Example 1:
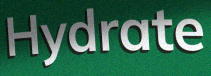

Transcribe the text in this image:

Hydrate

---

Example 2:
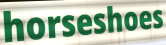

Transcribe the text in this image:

horseshoes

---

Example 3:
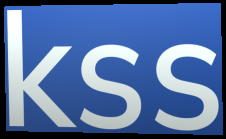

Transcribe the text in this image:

kss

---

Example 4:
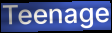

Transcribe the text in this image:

Teenage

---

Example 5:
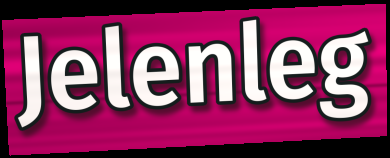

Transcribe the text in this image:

Jelenleg